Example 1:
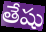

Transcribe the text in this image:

తేషు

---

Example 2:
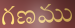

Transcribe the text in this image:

గణము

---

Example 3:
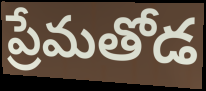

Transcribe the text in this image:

ప్రేమతోడ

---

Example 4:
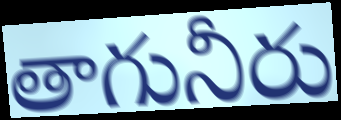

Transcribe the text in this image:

తాగునీరు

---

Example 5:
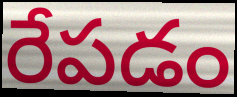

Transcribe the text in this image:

రేపడం